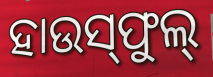
ହାଉସ୍‌ଫୁଲ୍